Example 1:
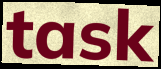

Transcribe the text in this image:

task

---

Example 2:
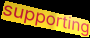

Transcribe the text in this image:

supporting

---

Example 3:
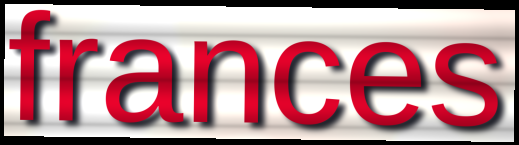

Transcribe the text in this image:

frances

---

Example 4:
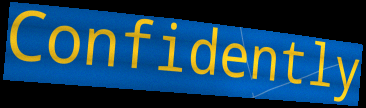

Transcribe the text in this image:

Confidently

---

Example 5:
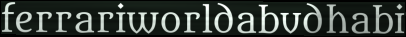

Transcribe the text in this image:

ferrariworldabudhabi